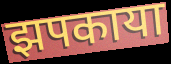
झपकाया